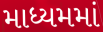
માધ્યમમાં